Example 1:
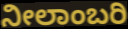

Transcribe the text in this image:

ನೀಲಾಂಬರಿ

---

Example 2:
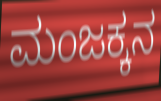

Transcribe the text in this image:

ಮಂಜಕ್ಕನ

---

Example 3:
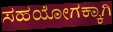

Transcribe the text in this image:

ಸಹಯೋಗಕ್ಕಾಗಿ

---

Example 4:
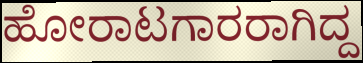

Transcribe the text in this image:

ಹೋರಾಟಗಾರರಾಗಿದ್ದ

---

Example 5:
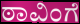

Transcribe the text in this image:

ಠಾವಿಂಗೆ